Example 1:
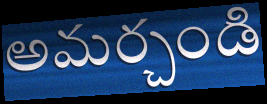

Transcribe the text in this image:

అమర్చండి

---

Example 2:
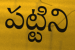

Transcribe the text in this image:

పట్టిని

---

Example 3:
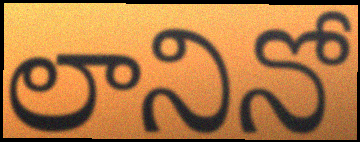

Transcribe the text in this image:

లానినో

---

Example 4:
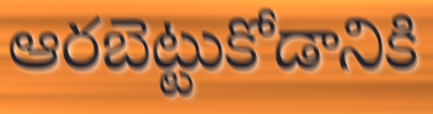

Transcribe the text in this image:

ఆరబెట్టుకోడానికి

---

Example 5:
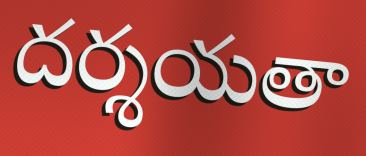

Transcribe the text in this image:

దర్శయతా